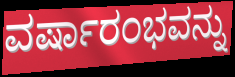
ವರ್ಷಾರಂಭವನ್ನು